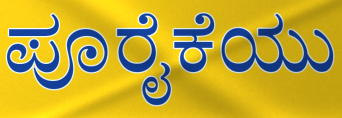
ಪೂರೈಕೆಯು